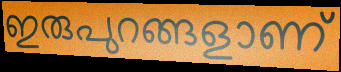
ഇരുപുറങ്ങളാണ്